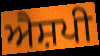
ਐਸ਼ਪੀ